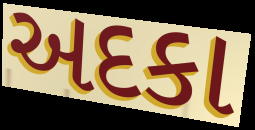
અદકા